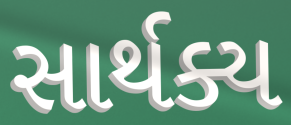
સાર્થક્ય